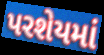
પરશેયમાં